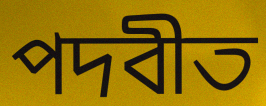
পদবীত